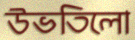
উভতিলো